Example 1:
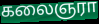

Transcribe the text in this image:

கலைஞரா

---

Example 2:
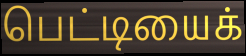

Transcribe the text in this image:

பெட்டியைக்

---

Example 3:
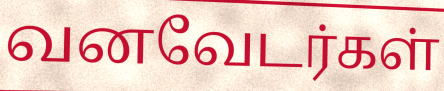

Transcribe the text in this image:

வனவேடர்கள்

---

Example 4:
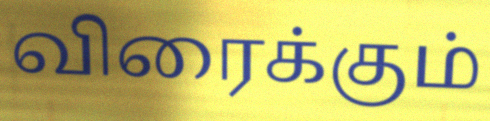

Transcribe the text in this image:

விரைக்கும்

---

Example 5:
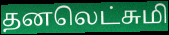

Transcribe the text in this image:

தனலெட்சுமி